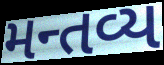
મન્તવ્ય